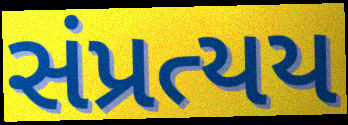
સંપ્રત્યય